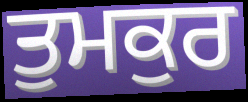
ਤੁਮਕੁਰ